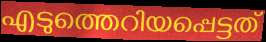
എടുത്തെറിയപ്പെട്ടത്